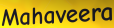
Mahaveera